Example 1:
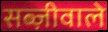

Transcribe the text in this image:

सब्ज़ीवाले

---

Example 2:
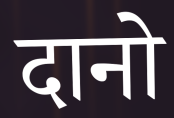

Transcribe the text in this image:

दानो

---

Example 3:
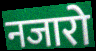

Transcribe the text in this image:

नजारो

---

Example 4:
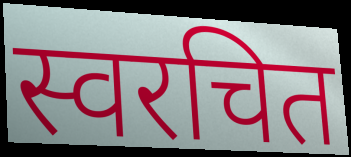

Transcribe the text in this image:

स्वरचित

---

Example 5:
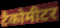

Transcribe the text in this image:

टैकोमीटर